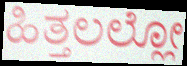
ಹಿತ್ತಲಲ್ಲೋ